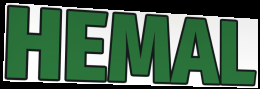
HEMAL